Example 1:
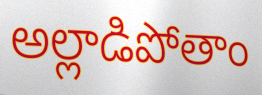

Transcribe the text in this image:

అల్లాడిపోతాం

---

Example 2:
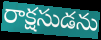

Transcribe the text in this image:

రాక్షసుడను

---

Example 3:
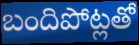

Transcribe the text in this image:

బందిపోట్లతో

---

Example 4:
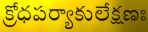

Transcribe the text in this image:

క్రోధపర్యాకులేక్షణః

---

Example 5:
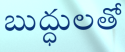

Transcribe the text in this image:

బుద్ధులతో